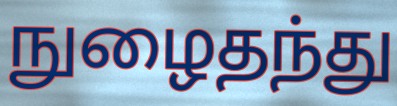
நுழைதந்து